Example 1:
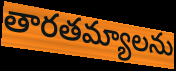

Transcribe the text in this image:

తారతమ్యాలను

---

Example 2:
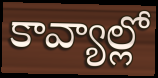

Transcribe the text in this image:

కావ్యాల్లో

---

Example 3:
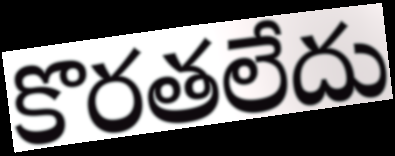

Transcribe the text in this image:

కొరతలేదు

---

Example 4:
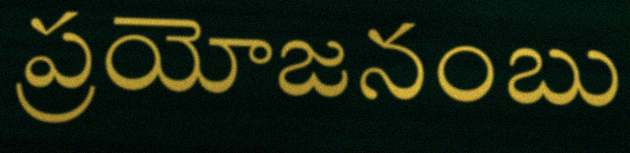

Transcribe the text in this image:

ప్రయోజనంబు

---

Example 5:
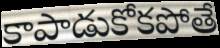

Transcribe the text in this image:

కాపాడుకోకపోతే